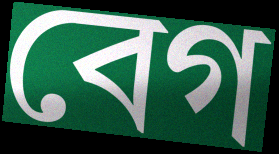
বেগ